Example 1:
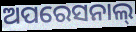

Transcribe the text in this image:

ଅପରେସନାଲ୍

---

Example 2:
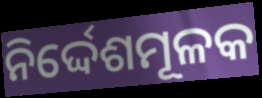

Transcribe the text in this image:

ନିର୍ଦ୍ଦେଶମୂଳକ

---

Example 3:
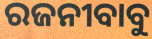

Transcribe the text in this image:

ରଜନୀବାବୁ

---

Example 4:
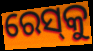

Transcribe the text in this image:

ରେସ୍‌କୁ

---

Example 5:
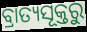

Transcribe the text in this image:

ବ୍ରାତ୍ୟସୂକ୍ତରୁ